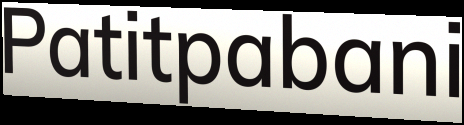
Patitpabani